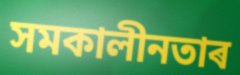
সমকালীনতাৰ